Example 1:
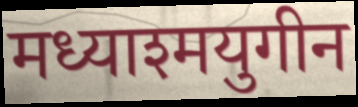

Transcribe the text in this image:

मध्याश्मयुगीन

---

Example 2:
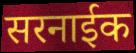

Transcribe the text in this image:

सरनाईक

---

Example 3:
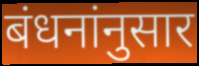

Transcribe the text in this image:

बंधनांनुसार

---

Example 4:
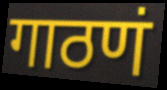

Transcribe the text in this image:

गाठणं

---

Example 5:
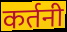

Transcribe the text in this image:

कर्तनी